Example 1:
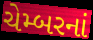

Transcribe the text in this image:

ચેમ્બરનાં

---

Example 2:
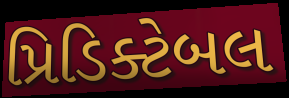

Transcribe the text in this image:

પ્રિડિક્ટેબલ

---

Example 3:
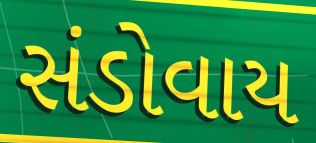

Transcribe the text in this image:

સંડોવાય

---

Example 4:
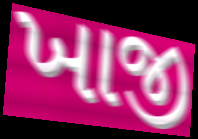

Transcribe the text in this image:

ખાજી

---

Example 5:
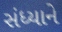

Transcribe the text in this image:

સંધ્યાને